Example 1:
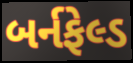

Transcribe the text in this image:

બર્નફેલ્ડ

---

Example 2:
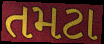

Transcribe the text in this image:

તમટા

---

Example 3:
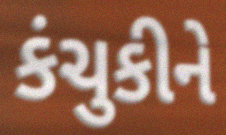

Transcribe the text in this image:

કંચુકીને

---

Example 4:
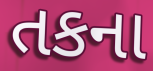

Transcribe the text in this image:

તકના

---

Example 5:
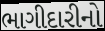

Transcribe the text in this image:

ભાગીદારીનો